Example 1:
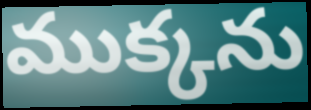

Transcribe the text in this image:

ముక్కను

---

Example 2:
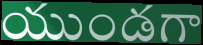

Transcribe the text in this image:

యుండగా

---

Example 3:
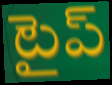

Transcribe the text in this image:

టైప్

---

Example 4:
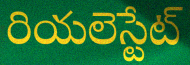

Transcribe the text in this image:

రియలెస్టేట్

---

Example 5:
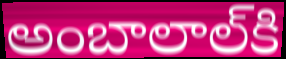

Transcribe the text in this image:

అంబాలాల్‌కి